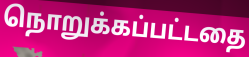
நொறுக்கப்பட்டதை